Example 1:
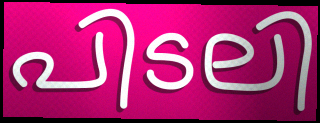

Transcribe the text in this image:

പിടലി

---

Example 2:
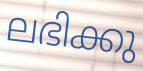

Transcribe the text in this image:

ലഭിക്കു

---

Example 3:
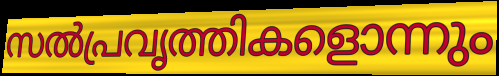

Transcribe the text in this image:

സൽപ്രവൃത്തികളൊന്നും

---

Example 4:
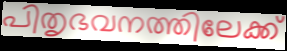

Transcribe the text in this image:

പിതൃഭവനത്തിലേക്ക്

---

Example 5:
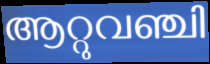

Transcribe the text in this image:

ആറ്റുവഞ്ചി